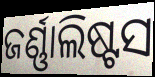
ଜର୍ଣ୍ଣାଲିଷ୍ଟସ